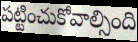
పట్టించుకోవాల్సింది